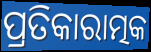
ପ୍ରତିକାରାତ୍ମକ